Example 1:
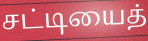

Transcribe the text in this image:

சட்டியைத்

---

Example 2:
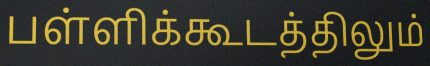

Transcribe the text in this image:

பள்ளிக்கூடத்திலும்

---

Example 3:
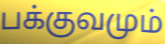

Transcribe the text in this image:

பக்குவமும்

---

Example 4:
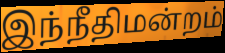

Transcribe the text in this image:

இந்நீதிமன்றம்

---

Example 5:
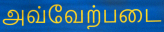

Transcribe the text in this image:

அவ்வேற்படை